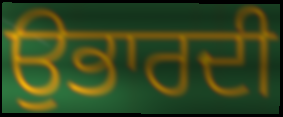
ਉਭਾਰਦੀ